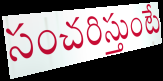
సంచరిస్తుంటే